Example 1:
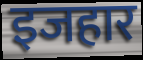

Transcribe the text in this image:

इजहार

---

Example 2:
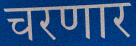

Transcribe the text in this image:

चरणार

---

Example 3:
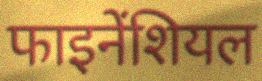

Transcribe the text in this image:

फाइनेंशियल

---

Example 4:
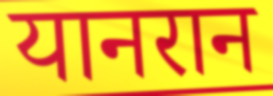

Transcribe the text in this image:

यानरान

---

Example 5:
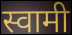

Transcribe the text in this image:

स्वामी